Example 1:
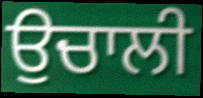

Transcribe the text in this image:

ਉਚਾਲੀ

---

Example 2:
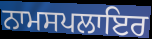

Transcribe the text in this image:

ਨਾਮਸਪਲਾਇਰ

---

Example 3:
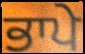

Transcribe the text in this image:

ਭਾਪੇ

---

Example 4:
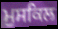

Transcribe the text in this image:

ਮੁਸਕਿਲ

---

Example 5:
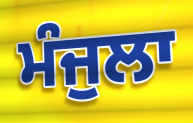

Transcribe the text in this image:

ਮੰਜੁਲਾ